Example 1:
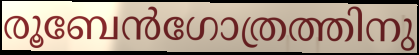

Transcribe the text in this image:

രൂബേൻഗോത്രത്തിനു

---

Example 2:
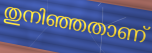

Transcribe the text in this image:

തുനിഞ്ഞതാണ്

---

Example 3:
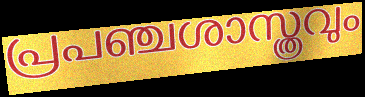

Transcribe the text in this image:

പ്രപഞ്ചശാസ്ത്രവും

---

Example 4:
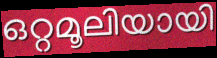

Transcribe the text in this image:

ഒറ്റമൂലിയായി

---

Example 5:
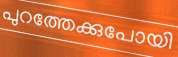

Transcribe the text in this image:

പുറത്തേക്കുപോയി